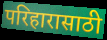
परिहारासाठी